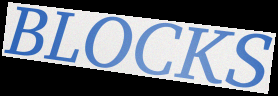
BLOCKS